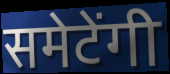
समेटेंगी